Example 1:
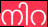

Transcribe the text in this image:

നിറ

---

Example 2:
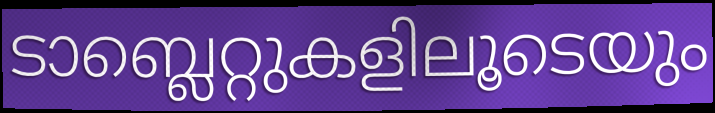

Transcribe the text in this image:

ടാബ്ലെറ്റുകളിലൂടെയും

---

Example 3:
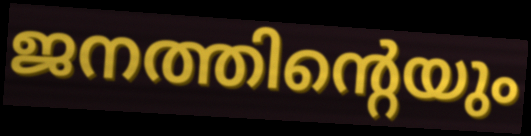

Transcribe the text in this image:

ജനത്തിന്റെയും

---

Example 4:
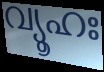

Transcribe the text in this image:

വ്യൂഹഃ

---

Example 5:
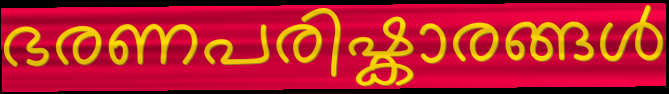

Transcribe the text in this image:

ഭരണപരിഷ്കാരങ്ങൾ